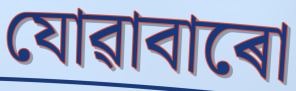
যোৱাবাৰো